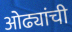
ओढ्यांची